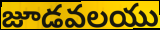
జూడవలయు